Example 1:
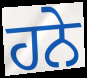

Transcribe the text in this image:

ਹਨੇ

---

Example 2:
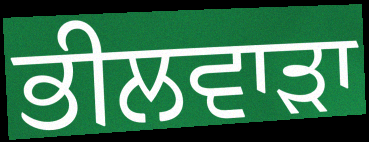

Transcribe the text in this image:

ਭੀਲਵਾੜਾ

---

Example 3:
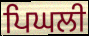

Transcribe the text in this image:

ਪਿਘਲੀ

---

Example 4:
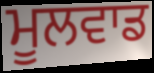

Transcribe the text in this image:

ਮੂਲਵਾਡ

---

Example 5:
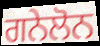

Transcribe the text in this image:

ਗਨੇਲੋਨ